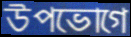
উপভোগে